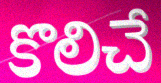
కొలిచే